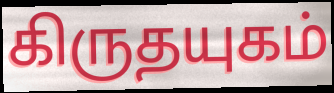
கிருதயுகம்